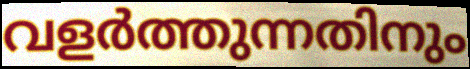
വളർത്തുന്നതിനും